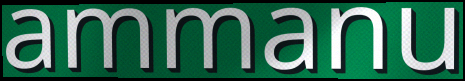
ammanu